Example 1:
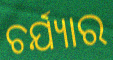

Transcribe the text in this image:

ଚର୍ଯ୍ୟାର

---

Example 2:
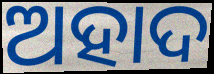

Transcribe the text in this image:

ଅହାଦ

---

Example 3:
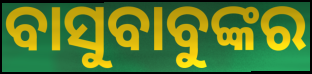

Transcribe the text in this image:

ବାସୁବାବୁଙ୍କର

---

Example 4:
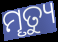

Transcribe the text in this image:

ମୄତ୍ୟୁ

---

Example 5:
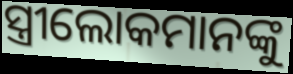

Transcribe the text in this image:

ସ୍ତ୍ରୀଲୋକମାନଙ୍କୁ